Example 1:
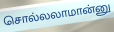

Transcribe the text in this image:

சொல்லலாமான்னு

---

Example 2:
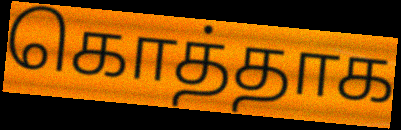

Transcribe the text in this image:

கொத்தாக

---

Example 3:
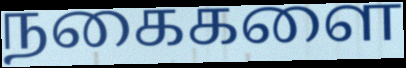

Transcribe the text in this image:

நகைகளை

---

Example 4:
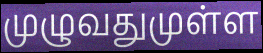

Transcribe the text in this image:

முழுவதுமுள்ள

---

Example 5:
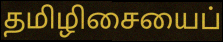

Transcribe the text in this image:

தமிழிசையைப்